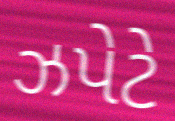
ઝપેટે